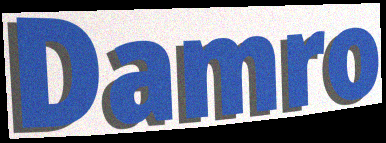
Damro